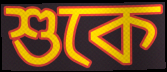
শুকে